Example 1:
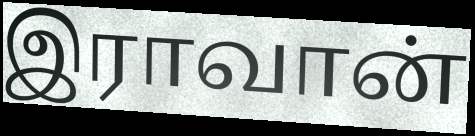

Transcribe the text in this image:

இராவான்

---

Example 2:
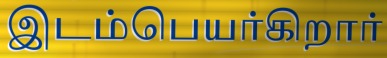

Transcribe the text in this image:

இடம்பெயர்கிறார்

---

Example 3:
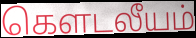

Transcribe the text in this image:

கெளடலீயம்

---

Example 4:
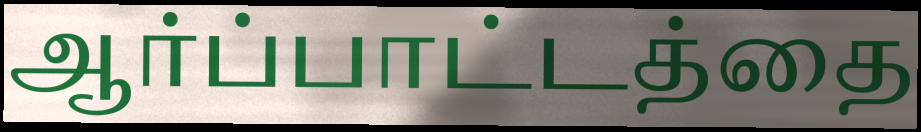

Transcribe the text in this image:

ஆர்ப்பாட்டத்தை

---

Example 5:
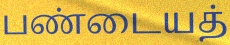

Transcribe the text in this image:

பண்டையத்